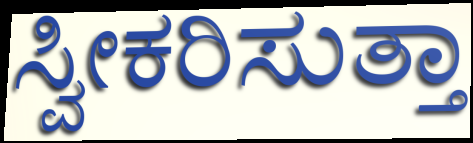
ಸ್ವೀಕರಿಸುತ್ತಾ